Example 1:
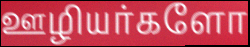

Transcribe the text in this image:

ஊழியர்களோ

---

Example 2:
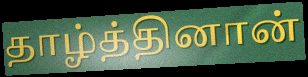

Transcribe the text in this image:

தாழ்த்தினான்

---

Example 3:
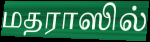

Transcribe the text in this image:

மதராஸில்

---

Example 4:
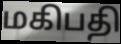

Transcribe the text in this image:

மகிபதி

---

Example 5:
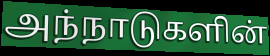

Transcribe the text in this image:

அந்நாடுகளின்